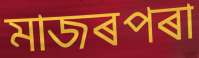
মাজৰপৰা